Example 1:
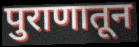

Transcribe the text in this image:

पुराणातून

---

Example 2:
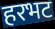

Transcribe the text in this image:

हरभट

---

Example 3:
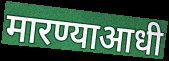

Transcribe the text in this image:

मारण्याआधी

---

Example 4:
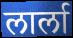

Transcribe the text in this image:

लार्ला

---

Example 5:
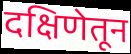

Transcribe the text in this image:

दक्षिणेतून